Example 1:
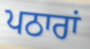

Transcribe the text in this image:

ਪਠਾਰਾਂ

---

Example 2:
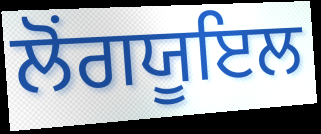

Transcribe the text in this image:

ਲੋਂਗਯੂਇਲ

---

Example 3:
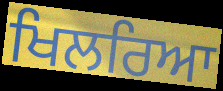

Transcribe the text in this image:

ਖਿਲਰਿਆ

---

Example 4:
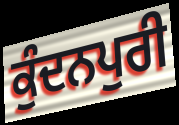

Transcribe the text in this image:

ਕੁੰਦਨਪੁਰੀ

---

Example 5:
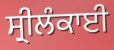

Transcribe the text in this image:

ਸ੍ਰੀਲੰਕਾਈ